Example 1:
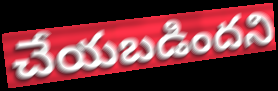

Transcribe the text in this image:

చేయబడిందని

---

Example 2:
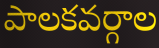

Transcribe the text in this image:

పాలకవర్గాల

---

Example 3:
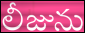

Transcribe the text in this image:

లీజును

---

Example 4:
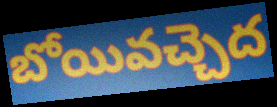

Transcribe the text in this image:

బోయివచ్చెద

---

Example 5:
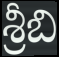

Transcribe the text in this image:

శ్రీబి